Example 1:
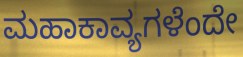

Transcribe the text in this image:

ಮಹಾಕಾವ್ಯಗಳೆಂದೇ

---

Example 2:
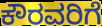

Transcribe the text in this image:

ಕೌರವರಿಗೆ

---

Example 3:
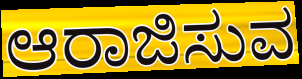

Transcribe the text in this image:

ಆರಾಜಿಸುವ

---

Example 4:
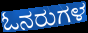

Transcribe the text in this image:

ಓನರುಗಳ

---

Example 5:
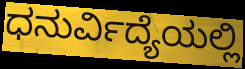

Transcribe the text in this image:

ಧನುರ್ವಿದ್ಯೆಯಲ್ಲಿ